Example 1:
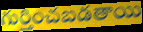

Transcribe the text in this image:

గుర్తించబడతాయి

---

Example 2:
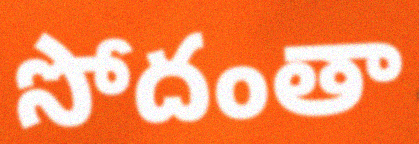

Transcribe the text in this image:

సోదంతా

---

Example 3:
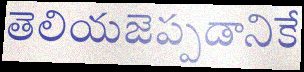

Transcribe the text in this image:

తెలియజెప్పడానికే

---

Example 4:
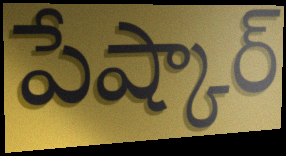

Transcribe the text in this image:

పేష్కార్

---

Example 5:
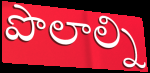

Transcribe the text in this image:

పొలాల్ని